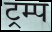
ट्रम्प